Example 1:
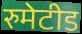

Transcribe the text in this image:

रुमेटीड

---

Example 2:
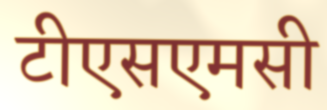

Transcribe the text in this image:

टीएसएमसी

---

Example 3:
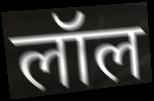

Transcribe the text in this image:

लॉल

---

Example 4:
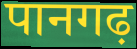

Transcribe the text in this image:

पानगढ़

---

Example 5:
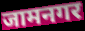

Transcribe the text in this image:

जामनगर